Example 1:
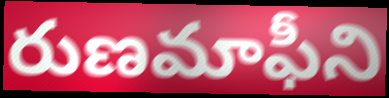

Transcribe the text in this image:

రుణమాఫీని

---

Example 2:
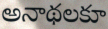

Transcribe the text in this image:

అనాథలకూ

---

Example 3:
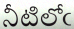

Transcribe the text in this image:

నీటిలోఁ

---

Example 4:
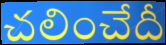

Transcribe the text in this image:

చలించేదీ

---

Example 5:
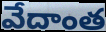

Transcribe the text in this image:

వేదాంత